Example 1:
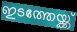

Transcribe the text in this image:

ഇടത്തേയ്ക്ക്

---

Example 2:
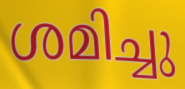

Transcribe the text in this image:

ശമിച്ചു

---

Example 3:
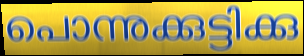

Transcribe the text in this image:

പൊന്നുക്കുട്ടിക്കു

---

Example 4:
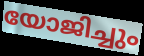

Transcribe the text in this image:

യോജിച്ചും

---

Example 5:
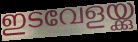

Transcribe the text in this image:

ഇടവേളയ്ക്കു